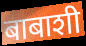
बाबाशी